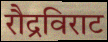
रौद्रविराट